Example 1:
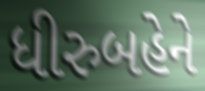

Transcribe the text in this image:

ધીરુબહેને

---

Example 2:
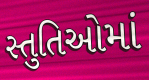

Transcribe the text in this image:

સ્તુતિઓમાં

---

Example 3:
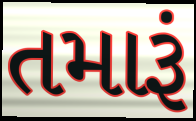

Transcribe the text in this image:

તમારૂં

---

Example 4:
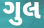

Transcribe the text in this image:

ગુલ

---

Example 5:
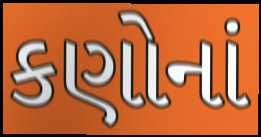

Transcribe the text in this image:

કણોનાં